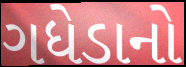
ગધેડાનો